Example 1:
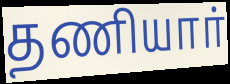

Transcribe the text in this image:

தணியார்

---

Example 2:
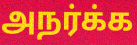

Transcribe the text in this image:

அநர்க்க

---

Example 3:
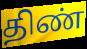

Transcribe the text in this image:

திண்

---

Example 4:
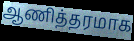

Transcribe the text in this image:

ஆணித்தரமாக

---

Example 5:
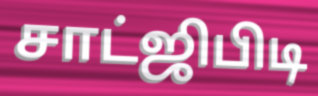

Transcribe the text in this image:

சாட்ஜிபிடி